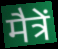
मैत्रें